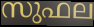
സുഫല